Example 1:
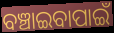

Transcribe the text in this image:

ବଞ୍ଚାଇବାପାଇଁ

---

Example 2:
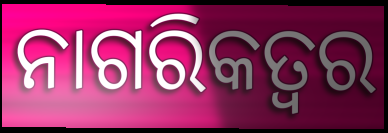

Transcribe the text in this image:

ନାଗରିକତ୍ଵର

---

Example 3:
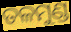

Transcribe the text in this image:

ତଳମୁଣ୍ଡ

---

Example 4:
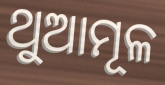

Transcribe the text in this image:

ଥୁଆମୂଳ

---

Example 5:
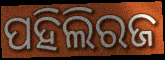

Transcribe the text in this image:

ପହିଲିରଜ